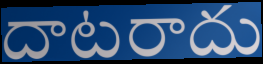
దాటరాదు